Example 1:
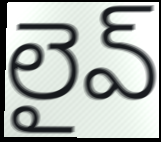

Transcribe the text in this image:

లైవ్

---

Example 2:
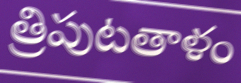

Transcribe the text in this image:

త్రిపుటతాళం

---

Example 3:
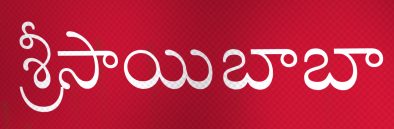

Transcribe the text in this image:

శ్రీసాయిబాబా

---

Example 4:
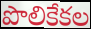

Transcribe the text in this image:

పొలికేకల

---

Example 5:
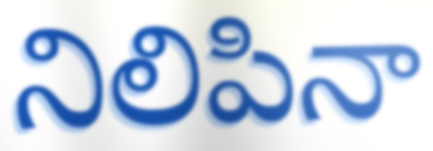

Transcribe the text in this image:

నిలిపినా